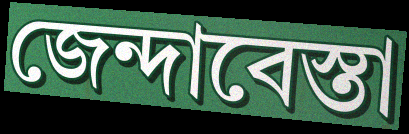
জেন্দাবেস্তা